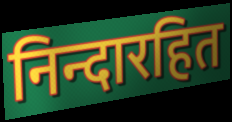
निन्दारहित